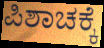
ಪಿಶಾಚಕ್ಕೆ